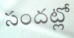
సందట్లో